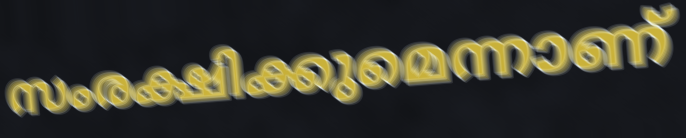
സംരക്ഷിക്കുമെന്നാണ്